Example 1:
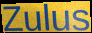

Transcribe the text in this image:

Zulus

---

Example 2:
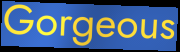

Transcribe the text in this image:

Gorgeous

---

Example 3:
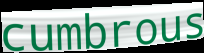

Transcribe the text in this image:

cumbrous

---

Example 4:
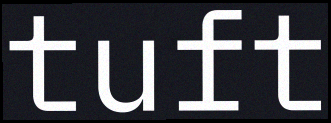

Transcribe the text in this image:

tuft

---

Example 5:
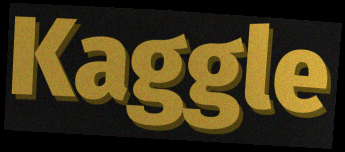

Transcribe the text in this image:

Kaggle